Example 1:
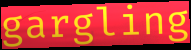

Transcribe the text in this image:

gargling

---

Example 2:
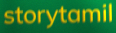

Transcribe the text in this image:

storytamil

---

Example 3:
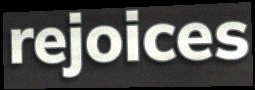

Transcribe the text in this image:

rejoices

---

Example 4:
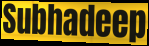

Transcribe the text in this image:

Subhadeep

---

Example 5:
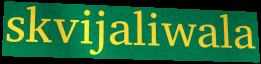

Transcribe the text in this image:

skvijaliwala